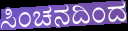
ಸಿಂಚನದಿಂದ